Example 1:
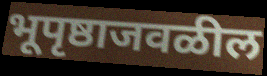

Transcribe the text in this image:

भूपृष्ठाजवळील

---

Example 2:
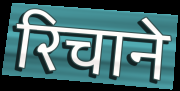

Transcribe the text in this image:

रिचाने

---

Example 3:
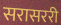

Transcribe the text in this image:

सरासररी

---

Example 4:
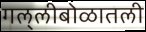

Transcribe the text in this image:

गल्लीबोळातली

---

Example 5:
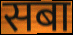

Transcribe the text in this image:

सबा